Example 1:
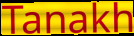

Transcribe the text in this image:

Tanakh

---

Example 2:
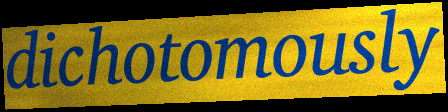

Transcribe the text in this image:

dichotomously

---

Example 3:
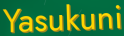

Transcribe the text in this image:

Yasukuni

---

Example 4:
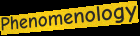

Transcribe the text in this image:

Phenomenology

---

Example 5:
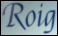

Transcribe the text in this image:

Roig